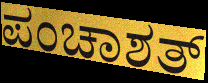
ಪಂಚಾಶತ್